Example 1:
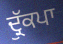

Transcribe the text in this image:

ਦ੍ਰੁੱਕਪਾ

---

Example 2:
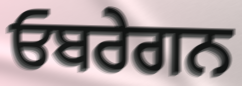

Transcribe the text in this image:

ਓਬਰੇਗਨ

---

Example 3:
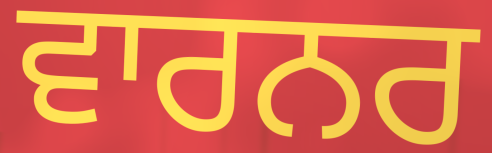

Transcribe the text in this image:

ਵਾਰਨਰ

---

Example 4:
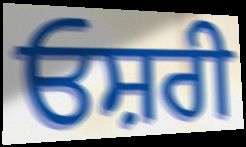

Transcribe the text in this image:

ਓਸ਼ਰੀ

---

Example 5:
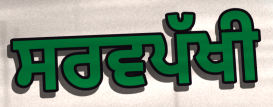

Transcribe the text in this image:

ਸਰਵਪੱਖੀ